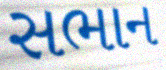
સભાન